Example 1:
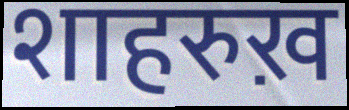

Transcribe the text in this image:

शाहरुख़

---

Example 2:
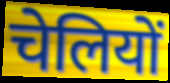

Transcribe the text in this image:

चेलियों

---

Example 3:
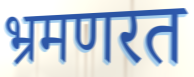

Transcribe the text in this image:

भ्रमणरत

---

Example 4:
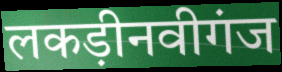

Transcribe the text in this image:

लकड़ीनवीगंज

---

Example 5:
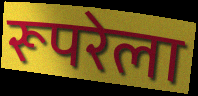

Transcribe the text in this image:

रूपरेला